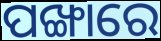
ପଙ୍ଖାରେ